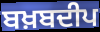
ਬਖ਼ਬਦੀਪ